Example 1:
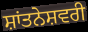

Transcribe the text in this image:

ਸ਼ਾਂਤਨੇਸ਼ਵਰੀ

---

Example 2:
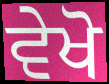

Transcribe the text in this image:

ਵੇਖੋ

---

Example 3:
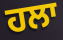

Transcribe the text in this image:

ਹਲਾ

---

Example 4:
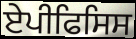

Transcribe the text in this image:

ਏਪੀਫਿਸਿਸ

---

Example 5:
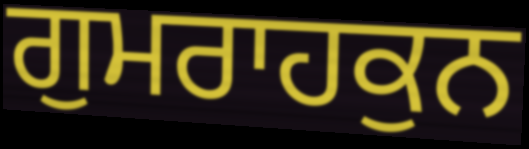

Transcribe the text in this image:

ਗੁਮਰਾਹਕੁਨ